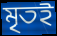
মৃতই